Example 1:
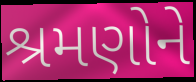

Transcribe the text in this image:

શ્રમણોને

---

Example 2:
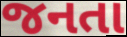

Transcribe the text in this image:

જનતા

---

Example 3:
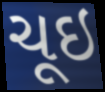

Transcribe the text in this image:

ચૂઇ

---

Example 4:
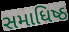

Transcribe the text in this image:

સમાધિષ્ઠ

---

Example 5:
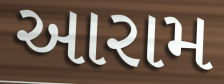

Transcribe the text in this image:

આરામ